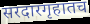
सरदारगृहातच